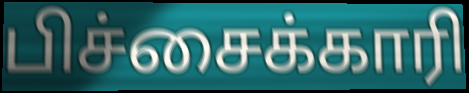
பிச்சைக்காரி